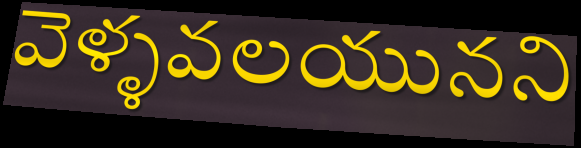
వెళ్ళవలయునని